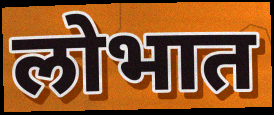
लोभात